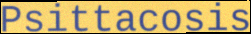
Psittacosis